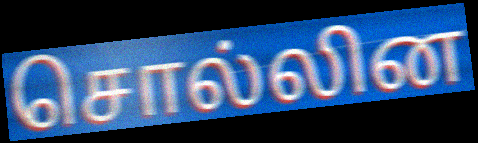
சொல்லின